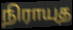
நிராயுத